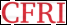
CFRI